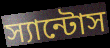
স্যান্টোস